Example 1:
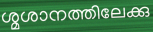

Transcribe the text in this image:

ശ്മശാനത്തിലേക്കു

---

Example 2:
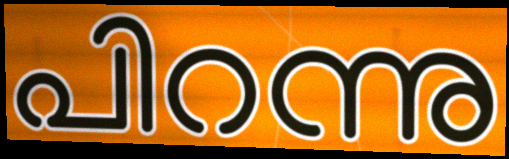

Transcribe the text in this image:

പിറന്നു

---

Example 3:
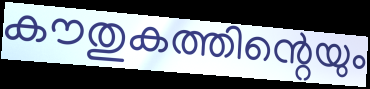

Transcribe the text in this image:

കൗതുകത്തിന്റെയും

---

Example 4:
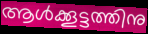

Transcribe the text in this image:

ആൾക്കൂട്ടത്തിനു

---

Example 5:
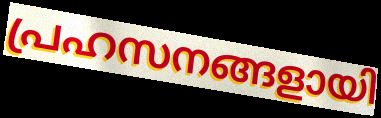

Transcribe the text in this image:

പ്രഹസനങ്ങളായി